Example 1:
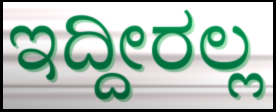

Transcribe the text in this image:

ಇದ್ದೀರಲ್ಲ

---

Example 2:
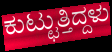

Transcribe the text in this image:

ಕುಟ್ಟುತ್ತಿದ್ದಳು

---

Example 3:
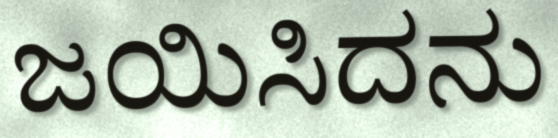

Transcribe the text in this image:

ಜಯಿಸಿದನು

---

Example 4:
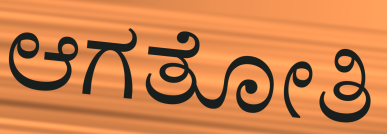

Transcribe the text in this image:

ಆಗತೋತಿ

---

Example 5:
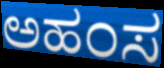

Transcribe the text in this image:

ಅಹಂಸ